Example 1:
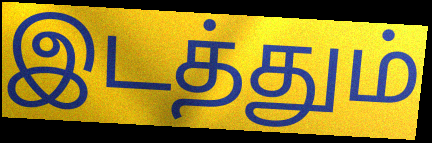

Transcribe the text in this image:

இடத்தும்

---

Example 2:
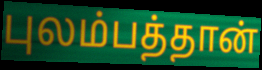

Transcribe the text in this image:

புலம்பத்தான்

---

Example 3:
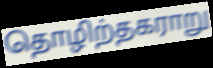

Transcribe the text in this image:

தொழிற்தகராறு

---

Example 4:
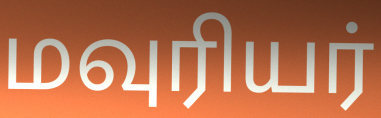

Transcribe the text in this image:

மவுரியர்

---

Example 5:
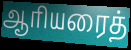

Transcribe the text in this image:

ஆரியரைத்